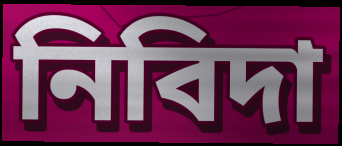
নিবিদা